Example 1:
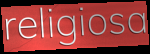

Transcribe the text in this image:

religiosa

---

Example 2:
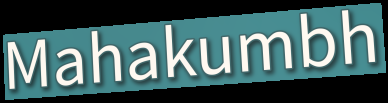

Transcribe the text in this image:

Mahakumbh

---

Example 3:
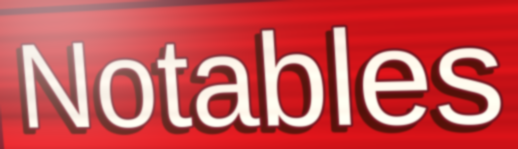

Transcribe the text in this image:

Notables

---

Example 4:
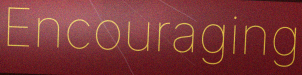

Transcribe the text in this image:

Encouraging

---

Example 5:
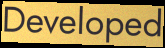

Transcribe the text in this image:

Developed